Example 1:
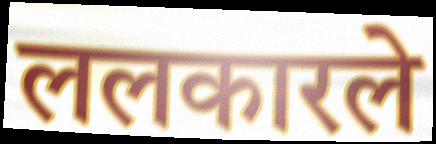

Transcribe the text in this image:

ललकारले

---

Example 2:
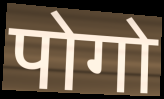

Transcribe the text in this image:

पोगो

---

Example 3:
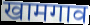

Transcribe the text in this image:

खामगाव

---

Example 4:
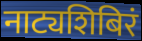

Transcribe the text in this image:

नाट्यशिबिरं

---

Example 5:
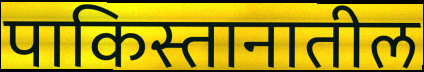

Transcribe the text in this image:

पाकिस्तानातील